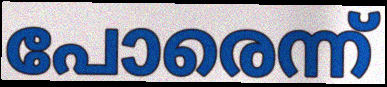
പോരെന്ന്